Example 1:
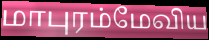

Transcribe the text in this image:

மாபுரம்மேவிய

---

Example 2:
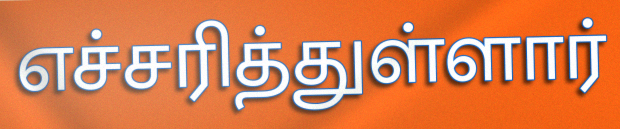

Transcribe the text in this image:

எச்சரித்துள்ளார்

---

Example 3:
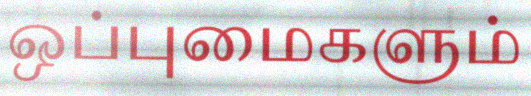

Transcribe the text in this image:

ஒப்புமைகளும்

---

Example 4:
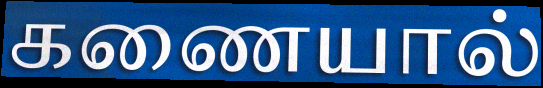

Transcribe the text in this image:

கணையால்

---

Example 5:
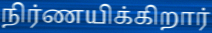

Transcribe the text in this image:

நிர்ணயிக்கிறார்